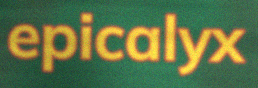
epicalyx